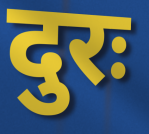
दुरः